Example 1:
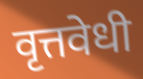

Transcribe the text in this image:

वृत्तवेधी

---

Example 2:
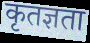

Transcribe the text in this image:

कृतज्ञता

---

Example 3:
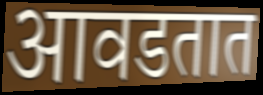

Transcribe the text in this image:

आवडतात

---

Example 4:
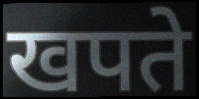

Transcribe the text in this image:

खपते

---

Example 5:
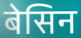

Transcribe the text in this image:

बेसिन